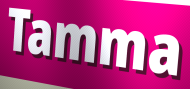
Tamma